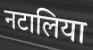
नटालिया